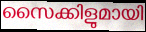
സൈക്കിളുമായി